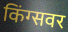
किंग्सवर